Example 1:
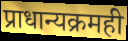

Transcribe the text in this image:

प्राधान्यक्रमही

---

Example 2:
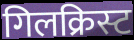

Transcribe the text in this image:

गिलक्रिस्‍ट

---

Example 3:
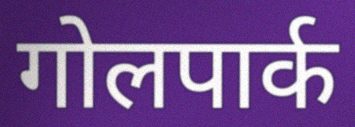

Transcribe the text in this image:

गोलपार्क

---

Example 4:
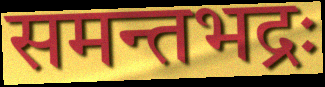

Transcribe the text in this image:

समन्तभद्रः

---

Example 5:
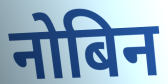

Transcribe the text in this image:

नोबिन